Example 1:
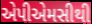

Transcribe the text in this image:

એપીએમસીથી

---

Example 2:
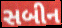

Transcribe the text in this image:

સબીન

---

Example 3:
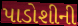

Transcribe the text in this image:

પાડોશીની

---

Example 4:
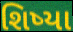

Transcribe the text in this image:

શિષ્યા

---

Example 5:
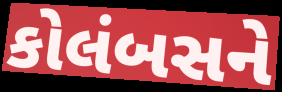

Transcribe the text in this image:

કોલંબસને